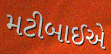
મટીબાઈએ